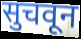
सुचवून